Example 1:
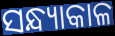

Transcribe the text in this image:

ସନ୍ଧ୍ୟାକାଳ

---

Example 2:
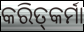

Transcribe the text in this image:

କରିତ୍‍କର୍ମା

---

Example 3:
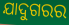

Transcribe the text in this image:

ଯାଦୁଗରର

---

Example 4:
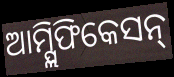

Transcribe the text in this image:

ଆମ୍ପ୍ଲିଫିକେସନ୍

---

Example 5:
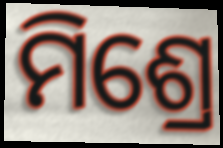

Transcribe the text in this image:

ମିଶ୍ରେ